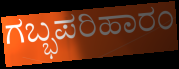
ಗಬ್ಭಪರಿಹಾರಂ